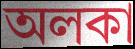
অলকা